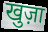
खुज़ा